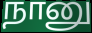
நானு